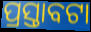
ପ୍ରସ୍ତାବଟା